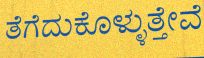
ತೆಗೆದುಕೊಳ್ಳುತ್ತೇವೆ